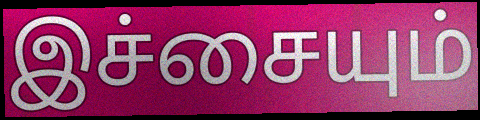
இச்சையும்